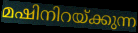
മഷിനിറയ്ക്കുന്ന